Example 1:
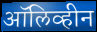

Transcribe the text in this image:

ऑलिव्हीन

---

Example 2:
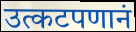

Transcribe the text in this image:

उत्कटपणानं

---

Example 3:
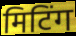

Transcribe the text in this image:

मिटिंग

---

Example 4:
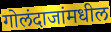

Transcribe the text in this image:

गोलंदाजांमधील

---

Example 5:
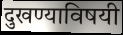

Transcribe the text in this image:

दुखण्याविषयी